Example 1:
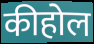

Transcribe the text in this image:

कीहोल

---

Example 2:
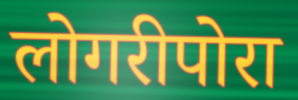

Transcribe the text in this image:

लोगरीपोरा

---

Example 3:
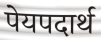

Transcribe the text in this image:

पेयपदार्थ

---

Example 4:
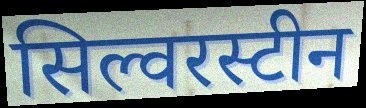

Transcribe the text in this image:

सिल्वरस्टीन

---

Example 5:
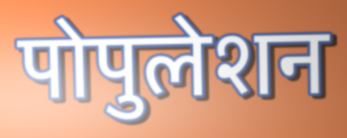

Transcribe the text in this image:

पोपुलेशन